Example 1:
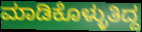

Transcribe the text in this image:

ಮಾಡಿಕೊಳ್ಳುತಿದ್ದ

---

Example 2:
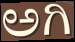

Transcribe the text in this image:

ಅಗಿ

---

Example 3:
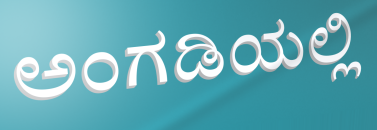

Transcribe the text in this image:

ಅಂಗಡಿಯಲ್ಲಿ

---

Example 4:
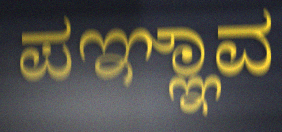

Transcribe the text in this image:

ಪಞ್ಞಾವ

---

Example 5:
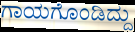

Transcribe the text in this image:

ಗಾಯಗೊಂಡಿದ್ದು